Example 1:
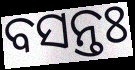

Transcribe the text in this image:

ବସନ୍ତଃ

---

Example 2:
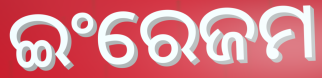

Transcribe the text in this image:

ଇଂରେଜମ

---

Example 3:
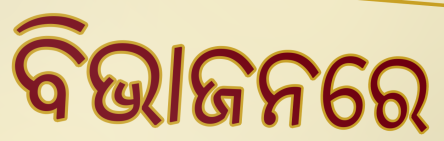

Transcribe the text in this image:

ବିଭାଜନରେ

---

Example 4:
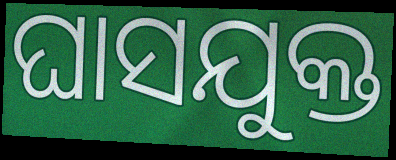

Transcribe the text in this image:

ଘାସଯୁକ୍ତ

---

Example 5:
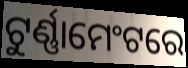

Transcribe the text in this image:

ଟୁର୍ଣ୍ଣାମେଂଟରେ